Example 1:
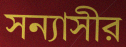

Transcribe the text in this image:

সন্যাসীর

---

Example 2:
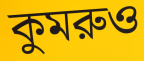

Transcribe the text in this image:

কুমরুও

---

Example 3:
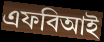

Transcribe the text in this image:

এফবিআই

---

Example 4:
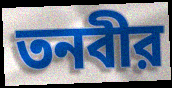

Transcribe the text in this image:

তনবীর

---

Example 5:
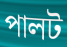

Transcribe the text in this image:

পালট